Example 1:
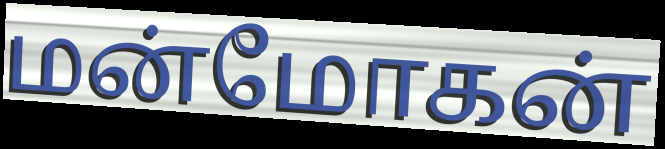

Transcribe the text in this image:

மன்மோகன்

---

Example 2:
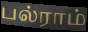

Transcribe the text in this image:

பல்ராம்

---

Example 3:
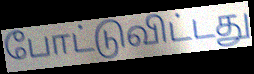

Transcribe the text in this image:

போட்டுவிட்டது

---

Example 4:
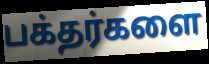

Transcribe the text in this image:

பக்தர்களை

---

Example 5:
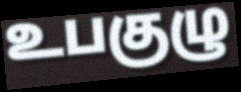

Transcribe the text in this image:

உபகுழு